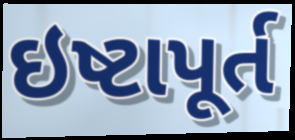
ઇષ્ટાપૂર્ત